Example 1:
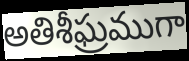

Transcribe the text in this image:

అతిశీఘ్రముగా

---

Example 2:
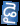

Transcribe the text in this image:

డై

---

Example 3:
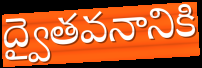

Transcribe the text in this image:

ద్వైతవనానికి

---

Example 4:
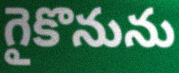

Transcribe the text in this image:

గైకొనును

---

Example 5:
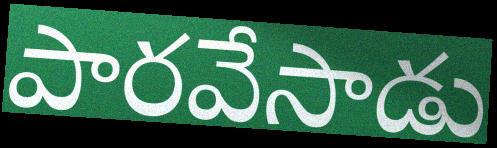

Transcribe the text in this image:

పారవేసాడు